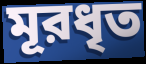
মূরধৃত